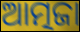
ଆତ୍ମଜା